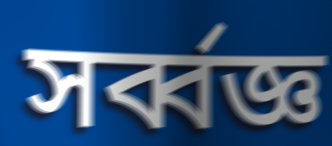
সৰ্ব্বজ্ঞ